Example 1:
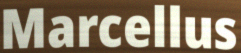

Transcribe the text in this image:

Marcellus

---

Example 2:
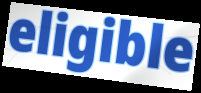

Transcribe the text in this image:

eligible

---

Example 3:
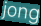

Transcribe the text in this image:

jong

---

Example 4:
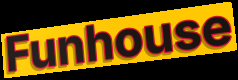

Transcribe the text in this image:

Funhouse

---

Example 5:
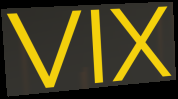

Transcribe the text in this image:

VIX